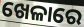
ଖେଳାରେ